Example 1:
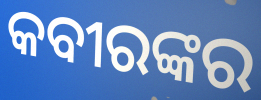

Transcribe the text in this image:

କବୀରଙ୍କର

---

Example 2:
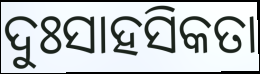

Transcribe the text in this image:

ଦୁଃସାହସିକତା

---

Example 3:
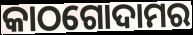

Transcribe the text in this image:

କାଠଗୋଦାମର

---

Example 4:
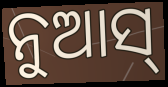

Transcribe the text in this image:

ନୁଆସ୍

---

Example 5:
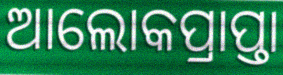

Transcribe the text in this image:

ଆଲୋକପ୍ରାପ୍ତା